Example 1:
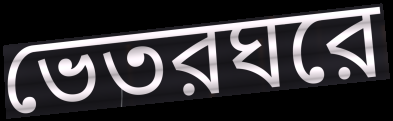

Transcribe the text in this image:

ভেতরঘরে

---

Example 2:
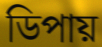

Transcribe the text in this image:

ডিপায়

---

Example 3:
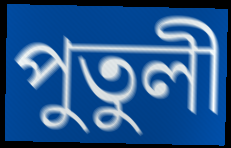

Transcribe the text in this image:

পুতুলী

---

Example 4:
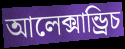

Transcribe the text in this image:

আলেক্সান্ড্রিচ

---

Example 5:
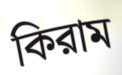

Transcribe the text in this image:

কিরাম